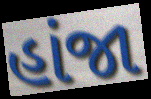
હાંજા